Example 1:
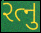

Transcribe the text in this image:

રત્નુ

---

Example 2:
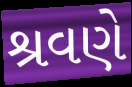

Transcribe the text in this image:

શ્રવણે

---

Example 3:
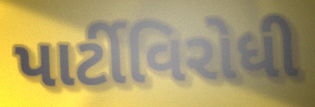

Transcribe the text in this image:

પાર્ટીવિરોધી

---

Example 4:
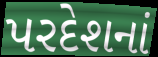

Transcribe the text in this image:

પરદેશનાં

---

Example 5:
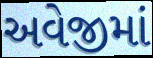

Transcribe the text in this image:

અવેજીમાં